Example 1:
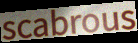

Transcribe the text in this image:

scabrous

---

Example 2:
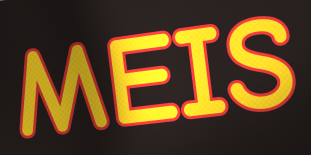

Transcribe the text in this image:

MEIS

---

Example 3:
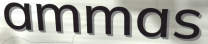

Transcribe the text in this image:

ammas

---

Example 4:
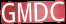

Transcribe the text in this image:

GMDC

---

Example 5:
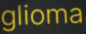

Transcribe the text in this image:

glioma